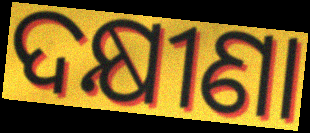
ଦକ୍ଷୀଣା